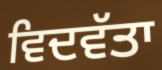
ਵਿਦਵੱਤਾ